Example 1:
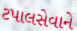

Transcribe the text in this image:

ટપાલસેવાને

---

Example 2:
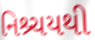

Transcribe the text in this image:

નિશ્ર્ચયથી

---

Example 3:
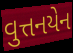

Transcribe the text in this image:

વુત્તનયેન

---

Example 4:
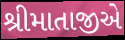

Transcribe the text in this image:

શ્રીમાતાજીએ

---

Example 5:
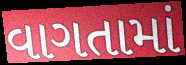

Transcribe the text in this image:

વાગતામાં